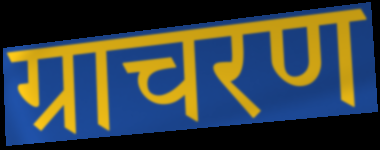
ग्राचरण